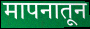
मापनातून